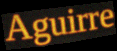
Aguirre